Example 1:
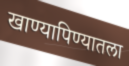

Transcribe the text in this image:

खाण्यापिण्यातला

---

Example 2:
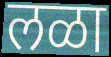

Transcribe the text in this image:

लळा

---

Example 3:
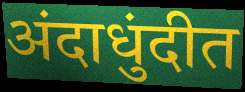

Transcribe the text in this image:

अंदाधुंदीत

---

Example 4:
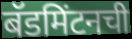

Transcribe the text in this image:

बॅडमिंटनची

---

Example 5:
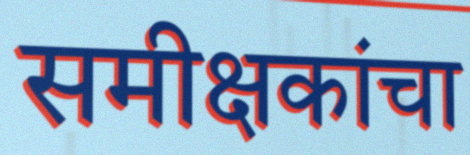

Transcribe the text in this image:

समीक्षकांचा